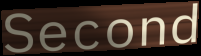
Second